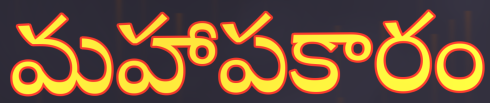
మహాపకారం